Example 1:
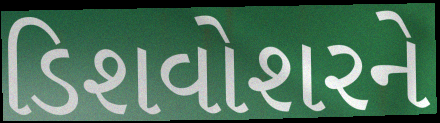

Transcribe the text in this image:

ડિશવોશરને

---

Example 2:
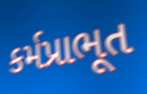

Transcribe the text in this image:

કર્મપ્રાભૂત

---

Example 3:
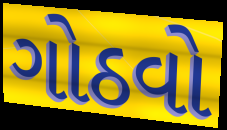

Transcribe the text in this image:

ગોઠવો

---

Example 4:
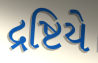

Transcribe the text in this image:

દ્રષ્ટિયે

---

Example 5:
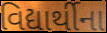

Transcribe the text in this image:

વિદ્યાર્થીના